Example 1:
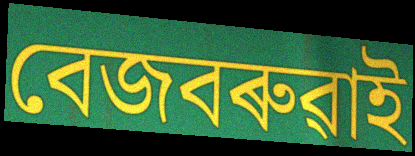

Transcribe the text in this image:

বেজবৰুৱাই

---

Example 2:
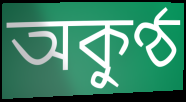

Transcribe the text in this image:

অকুণ্ঠ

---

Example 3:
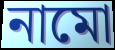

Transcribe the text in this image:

নামো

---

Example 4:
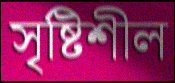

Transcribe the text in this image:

সৃষ্টিশীল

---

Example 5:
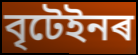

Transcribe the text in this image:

বৃটেইনৰ